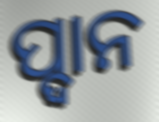
ପ୍ଦାନ